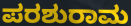
ಪರಶುರಾಮ